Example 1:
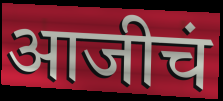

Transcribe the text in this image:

आजीचं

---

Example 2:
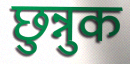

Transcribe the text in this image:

छुन्नुक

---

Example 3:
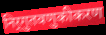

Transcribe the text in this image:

निर्गुतवणुकीकरण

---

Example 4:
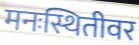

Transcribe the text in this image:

मनःस्थितीवर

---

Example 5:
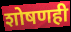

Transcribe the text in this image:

शोषणही